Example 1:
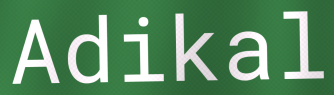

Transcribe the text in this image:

Adikal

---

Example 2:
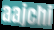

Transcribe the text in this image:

aajchi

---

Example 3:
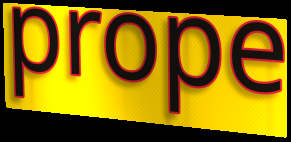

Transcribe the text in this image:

prope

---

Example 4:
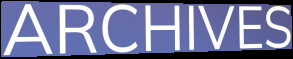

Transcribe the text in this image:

ARCHIVES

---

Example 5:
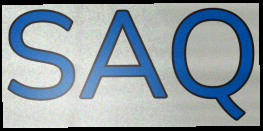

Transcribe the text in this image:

SAQ